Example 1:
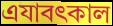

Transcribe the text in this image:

এযাবৎকাল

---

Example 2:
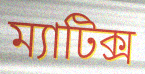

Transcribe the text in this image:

ম্যাটিক্স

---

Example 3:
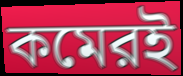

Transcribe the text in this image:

কমেরই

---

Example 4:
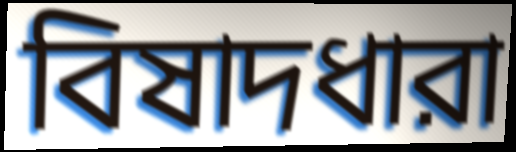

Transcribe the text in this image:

বিষাদধারা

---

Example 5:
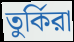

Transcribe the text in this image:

তুর্কিরা